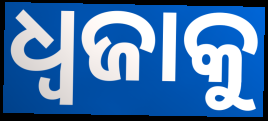
ଧ୍ୱଜାକୁ